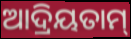
ଆଦ୍ରିୟତାମ୍